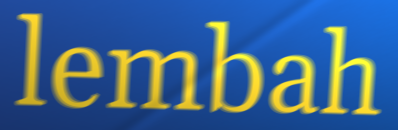
lembah